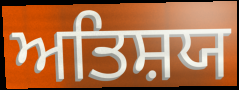
ਅਤਿਸ਼ਯ